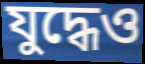
যুদ্ধেও